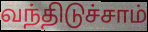
வந்திடுச்சாம்